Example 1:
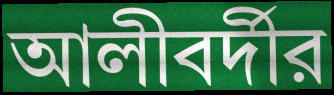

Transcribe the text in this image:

আলীবর্দীর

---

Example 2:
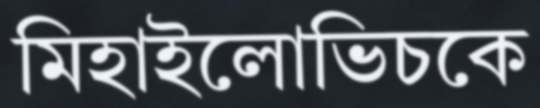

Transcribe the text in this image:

মিহাইলোভিচকে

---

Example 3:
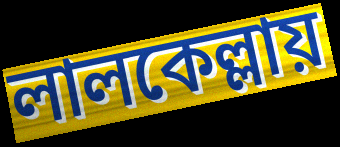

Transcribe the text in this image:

লালকেল্লায়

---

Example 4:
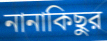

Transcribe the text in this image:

নানাকিছুর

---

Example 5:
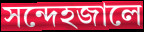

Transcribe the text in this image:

সন্দেহজালে